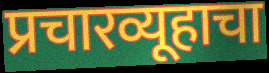
प्रचारव्यूहाचा